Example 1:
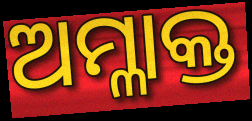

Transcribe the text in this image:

ଅମ୍ଳାକ୍ତ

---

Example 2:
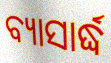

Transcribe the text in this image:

ବ୍ୟାସାର୍ଦ୍ଧ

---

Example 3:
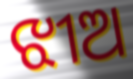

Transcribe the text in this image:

ଝୀଅ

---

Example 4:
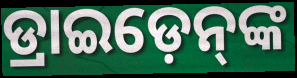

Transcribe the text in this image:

ଡ୍ରାଇଡ଼େନ୍‌ଙ୍କ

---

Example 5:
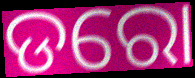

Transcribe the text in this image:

ଡରୋ